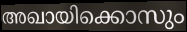
അഖായിക്കൊസും